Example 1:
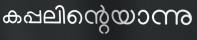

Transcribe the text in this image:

കപ്പലിന്റെയാന്നു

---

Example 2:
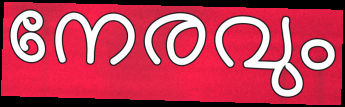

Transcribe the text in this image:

നേരവും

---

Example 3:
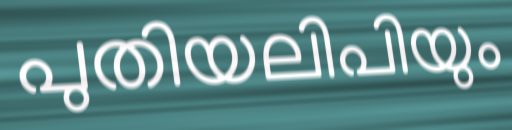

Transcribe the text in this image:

പുതിയലിപിയും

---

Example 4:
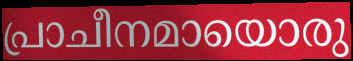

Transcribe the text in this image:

പ്രാചീനമായൊരു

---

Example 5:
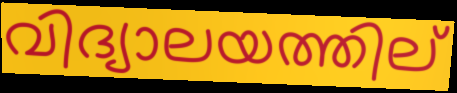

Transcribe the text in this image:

വിദ്യാലയത്തില്